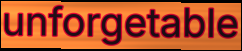
unforgetable